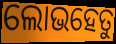
ଲୋଭହେତୁ